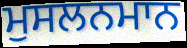
ਮੁਸਲਨਮਾਨ